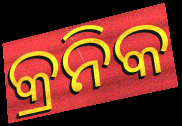
କ୍ରନିକ